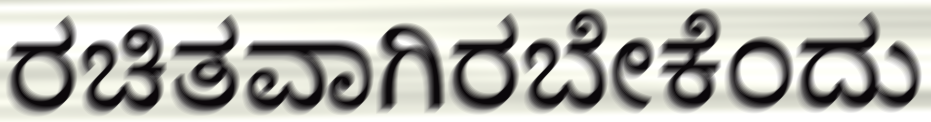
ರಚಿತವಾಗಿರಬೇಕೆಂದು